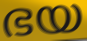
ഭയ